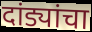
दांड्यांचा